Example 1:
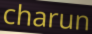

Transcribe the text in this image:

charun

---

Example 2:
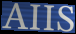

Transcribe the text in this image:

AIIS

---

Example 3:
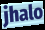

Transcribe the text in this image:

jhalo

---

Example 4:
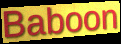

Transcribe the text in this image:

Baboon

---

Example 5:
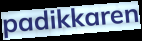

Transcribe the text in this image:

padikkaren